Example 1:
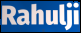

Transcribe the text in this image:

Rahulji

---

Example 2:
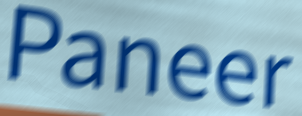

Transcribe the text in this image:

Paneer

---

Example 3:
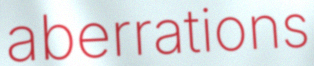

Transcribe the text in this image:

aberrations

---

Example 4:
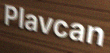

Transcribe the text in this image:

Plavcan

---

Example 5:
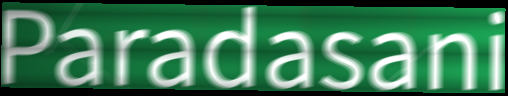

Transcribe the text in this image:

Paradasani